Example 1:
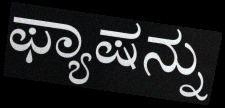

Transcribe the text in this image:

ಫ್ಯಾಷನ್ನು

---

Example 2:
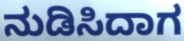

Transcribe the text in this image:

ನುಡಿಸಿದಾಗ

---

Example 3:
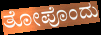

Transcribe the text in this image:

ತೋಪೊಂದು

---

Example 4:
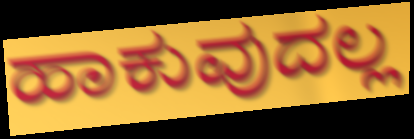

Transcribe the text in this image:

ಹಾಕುವುದಲ್ಲ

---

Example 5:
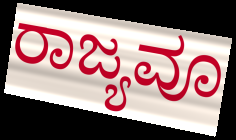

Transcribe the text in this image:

ರಾಜ್ಯವೂ